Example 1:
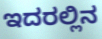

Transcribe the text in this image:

ಇದರಲ್ಲಿನ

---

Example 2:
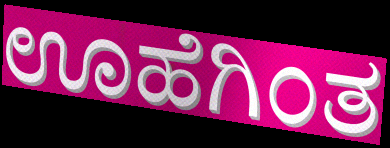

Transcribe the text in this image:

ಊಹೆಗಿಂತ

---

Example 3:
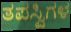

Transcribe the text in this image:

ತಪಸ್ವಿಗಳ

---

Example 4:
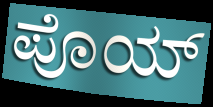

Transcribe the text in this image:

ಪೊಯ್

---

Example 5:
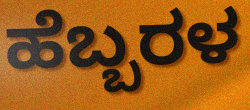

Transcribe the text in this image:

ಹೆಬ್ಬರಳ